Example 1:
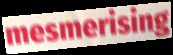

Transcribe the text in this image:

mesmerising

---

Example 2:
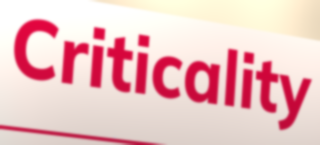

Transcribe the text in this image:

Criticality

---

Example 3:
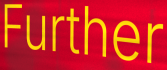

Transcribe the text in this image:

Further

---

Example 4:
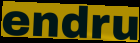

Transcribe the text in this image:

endru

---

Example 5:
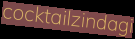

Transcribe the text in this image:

cocktailzindagi